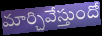
మార్చివేస్తుందో